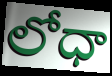
లోధా